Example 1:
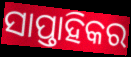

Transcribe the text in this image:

ସାପ୍ତାହିକର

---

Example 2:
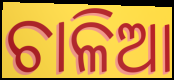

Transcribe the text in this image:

ଚାଳିଆ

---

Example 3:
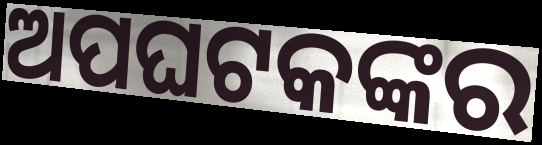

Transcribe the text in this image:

ଅପଘଟକଙ୍କର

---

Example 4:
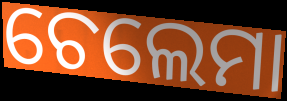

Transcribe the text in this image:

ଚେଲେମା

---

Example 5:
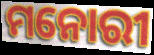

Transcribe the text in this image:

ମନୋରୀ